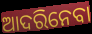
ଆଦରିନେବା